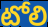
టోలి